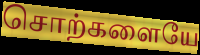
சொற்களையே